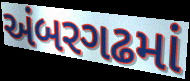
અંબરગઢમાં